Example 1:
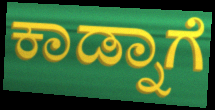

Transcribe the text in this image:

ಕಾಡ್ನಾಗೆ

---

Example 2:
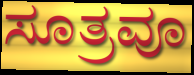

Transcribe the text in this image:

ಸೂತ್ರವೂ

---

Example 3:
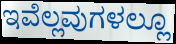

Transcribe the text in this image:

ಇವೆಲ್ಲವುಗಳಲ್ಲೂ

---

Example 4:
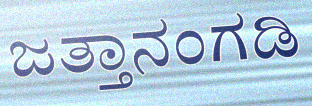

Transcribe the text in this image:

ಜತ್ತಾನಂಗಡಿ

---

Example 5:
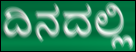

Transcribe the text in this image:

ದಿನದಲ್ಲಿ